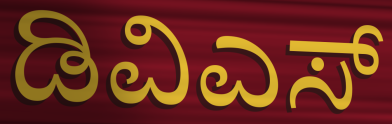
ಡಿವಿಎಸ್